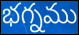
భగ్నము